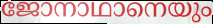
ജോനാഥാനെയും